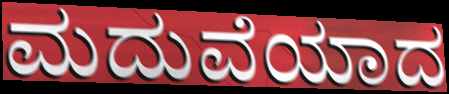
ಮದುವೆಯಾದ